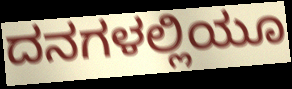
ದನಗಳಲ್ಲಿಯೂ